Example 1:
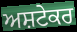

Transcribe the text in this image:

ਅਸ਼ਟੇਕਰ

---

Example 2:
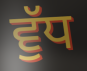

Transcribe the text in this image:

ਵੁੱਧ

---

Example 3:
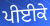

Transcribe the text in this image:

ਪੀਈਕੇ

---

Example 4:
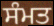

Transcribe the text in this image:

ਸੰਮਤ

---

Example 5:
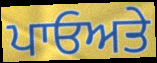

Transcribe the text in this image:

ਪਾਓਅਤੇ